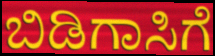
ಬಿಡಿಗಾಸಿಗೆ